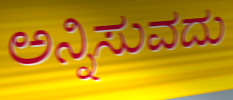
ಅನ್ನಿಸುವದು